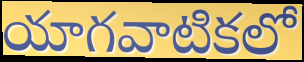
యాగవాటికలో